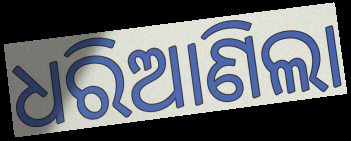
ଧରିଆଣିଲା